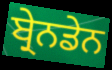
ਬ੍ਰੇਨਡੇਨ